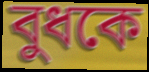
বুধকে